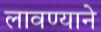
लावण्याने